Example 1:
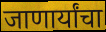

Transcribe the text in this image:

जाणार्यांचा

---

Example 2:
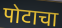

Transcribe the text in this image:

पोटाचा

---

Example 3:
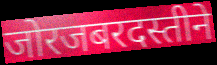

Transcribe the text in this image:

जोरजबरदस्तीने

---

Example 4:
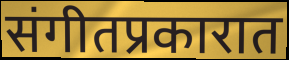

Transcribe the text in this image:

संगीतप्रकारात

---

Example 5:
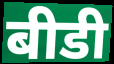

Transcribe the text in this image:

बीडी